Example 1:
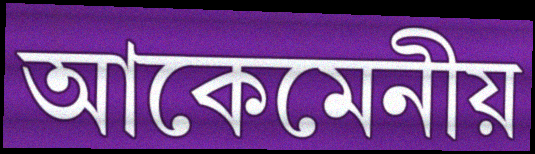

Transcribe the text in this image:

আকেমেনীয়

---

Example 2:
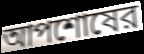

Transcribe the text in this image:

আপশোষের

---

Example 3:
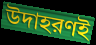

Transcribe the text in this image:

উদাহরণই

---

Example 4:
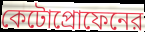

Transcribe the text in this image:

কেটোপ্রোফেনের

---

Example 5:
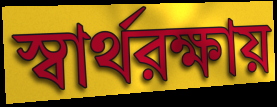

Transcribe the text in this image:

স্বার্থরক্ষায়